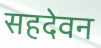
सहदेवन